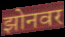
झोनवर